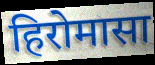
हिरोमासा